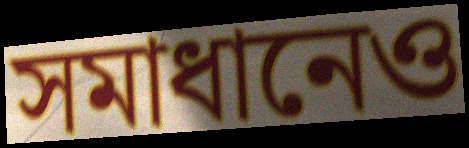
সমাধানেও